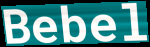
Bebel